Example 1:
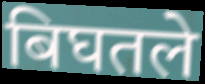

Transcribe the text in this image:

बिघतले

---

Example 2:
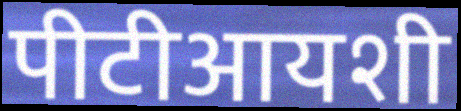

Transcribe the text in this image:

पीटीआयशी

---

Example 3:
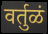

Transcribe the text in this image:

वर्तुळं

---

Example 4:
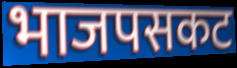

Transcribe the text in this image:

भाजपसकट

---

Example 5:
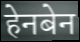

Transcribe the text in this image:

हेनबेन